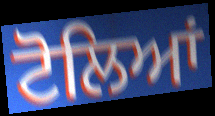
ਟੋਲਿਆਂ